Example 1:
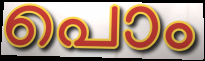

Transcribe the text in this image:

പൊം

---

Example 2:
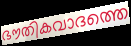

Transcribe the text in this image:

ഭൗതികവാദത്തെ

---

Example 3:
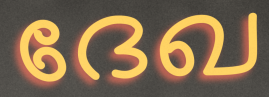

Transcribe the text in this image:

ദേഖ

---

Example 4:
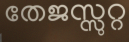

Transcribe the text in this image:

തേജസ്സുറ്റ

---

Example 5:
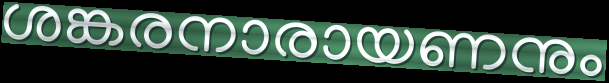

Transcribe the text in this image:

ശങ്കരനാരായണനും